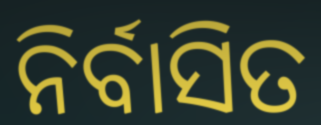
ନିର୍ବାସିତ